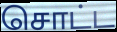
சொட்ட